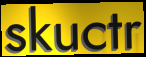
skuctr